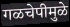
गळचेपीमुळे